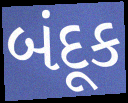
બંદૂક